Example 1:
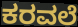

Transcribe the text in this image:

ಕರವಲೆ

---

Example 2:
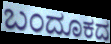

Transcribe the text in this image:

ಬಂದೂಕದ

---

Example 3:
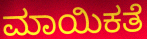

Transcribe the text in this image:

ಮಾಯಿಕತೆ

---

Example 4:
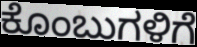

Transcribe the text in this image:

ಕೊಂಬುಗಳಿಗೆ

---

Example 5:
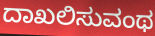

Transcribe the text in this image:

ದಾಖಲಿಸುವಂಥ